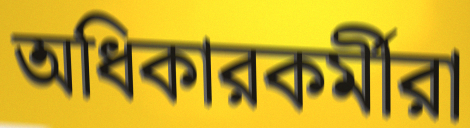
অধিকারকর্মীরা